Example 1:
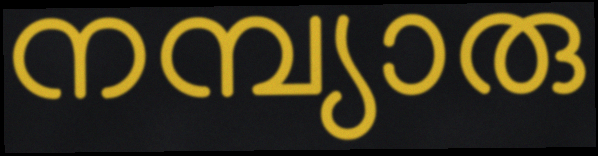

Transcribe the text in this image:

നമ്പ്യാരു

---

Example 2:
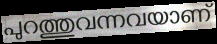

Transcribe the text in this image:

പുറത്തുവന്നവയാണ്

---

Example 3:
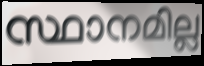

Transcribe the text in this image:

സ്ഥാനമില്ല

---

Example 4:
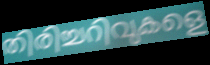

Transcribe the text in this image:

തിരിച്ചറിവുകളെ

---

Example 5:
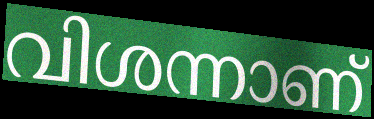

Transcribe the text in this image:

വിശന്നാണ്